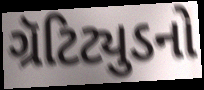
ગ્રૅટિટ્યુડનો